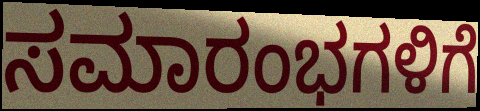
ಸಮಾರಂಭಗಳಿಗೆ